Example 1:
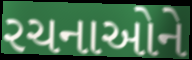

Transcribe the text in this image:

રચનાઓને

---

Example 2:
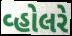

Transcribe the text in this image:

વ્હોલરે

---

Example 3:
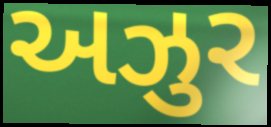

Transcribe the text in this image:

અઝુર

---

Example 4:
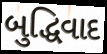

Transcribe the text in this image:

બુદ્ધિવાદ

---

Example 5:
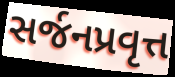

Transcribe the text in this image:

સર્જનપ્રવૃત્ત